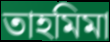
তাহমিমা